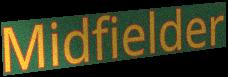
Midfielder